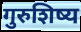
गुरुशिष्य